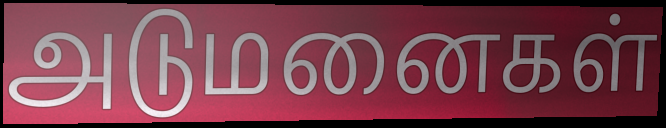
அடுமனைகள்